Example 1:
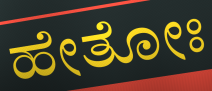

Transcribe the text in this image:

ಹೇತೋಃ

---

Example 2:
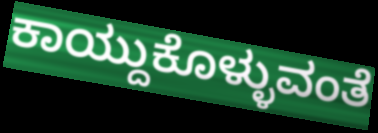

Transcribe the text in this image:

ಕಾಯ್ದುಕೊಳ್ಳುವಂತೆ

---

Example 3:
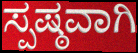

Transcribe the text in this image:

ಸ್ಪಷ್ಠವಾಗಿ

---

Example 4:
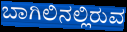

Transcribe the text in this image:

ಬಾಗಿಲಿನಲ್ಲಿರುವ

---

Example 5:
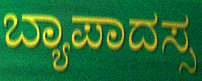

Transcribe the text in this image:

ಬ್ಯಾಪಾದಸ್ಸ